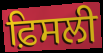
ਫ਼ਿਸਲੀ